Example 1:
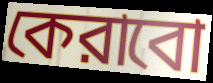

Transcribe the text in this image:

কেরাবো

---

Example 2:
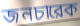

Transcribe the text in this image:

জনচারেক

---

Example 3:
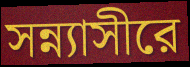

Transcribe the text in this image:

সন্ন্যাসীরে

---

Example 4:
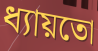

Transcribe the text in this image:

ধ্যায়তো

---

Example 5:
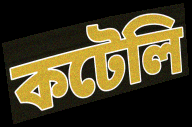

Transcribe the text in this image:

কটেলি